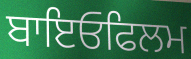
ਬਾਇਓਫਿਲਮ